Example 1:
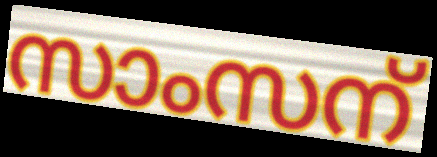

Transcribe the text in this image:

സാംസന്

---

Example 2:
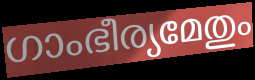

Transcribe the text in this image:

ഗാംഭീര്യമേതും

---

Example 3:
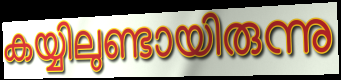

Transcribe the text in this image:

കയ്യിലുണ്ടായിരുന്നു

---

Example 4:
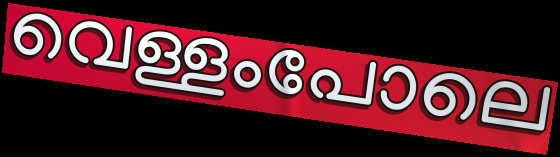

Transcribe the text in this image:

വെള്ളംപോലെ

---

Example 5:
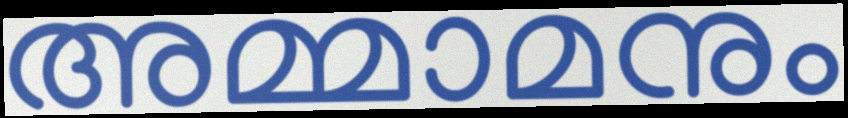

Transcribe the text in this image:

അമ്മാമനും